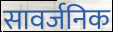
सावर्जनिक